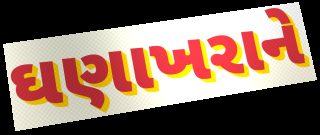
ઘણાખરાને